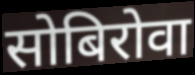
सोबिरोवा